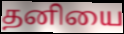
தனியை